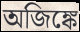
অজিঙ্কে